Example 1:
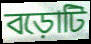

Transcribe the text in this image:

বড়োটি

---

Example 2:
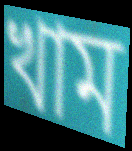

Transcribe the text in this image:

খাম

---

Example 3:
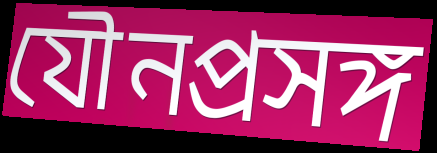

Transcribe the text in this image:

যৌনপ্রসঙ্গ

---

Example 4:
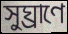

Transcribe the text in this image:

সুঘ্রাণে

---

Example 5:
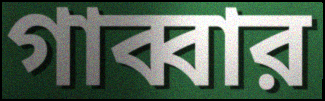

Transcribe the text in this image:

গাব্বার